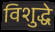
विशुद्धे